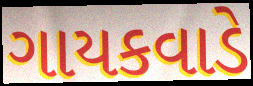
ગાયકવાડે